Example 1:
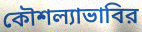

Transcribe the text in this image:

কৌশল্যাভাবির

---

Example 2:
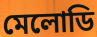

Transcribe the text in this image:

মেলোডি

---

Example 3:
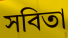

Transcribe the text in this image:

সবিতা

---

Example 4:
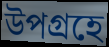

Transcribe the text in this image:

উপগ্রহে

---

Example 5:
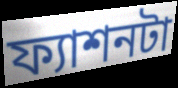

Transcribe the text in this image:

ফ্যাশনটা